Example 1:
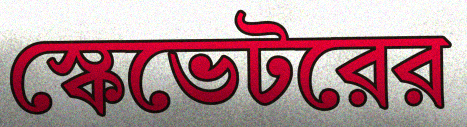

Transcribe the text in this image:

স্কেভেটরের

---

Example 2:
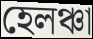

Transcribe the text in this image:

হেলঞ্চা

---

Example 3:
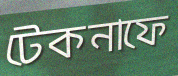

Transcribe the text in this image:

টেকনাফে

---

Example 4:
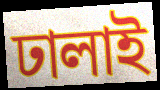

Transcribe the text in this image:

ঢালাই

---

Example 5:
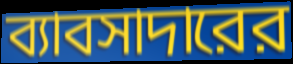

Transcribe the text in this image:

ব্যাবসাদারের